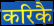
करिकै